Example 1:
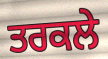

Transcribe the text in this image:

ਤਰਕਲੇ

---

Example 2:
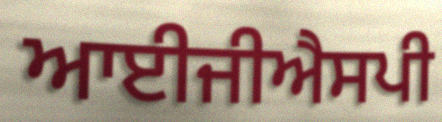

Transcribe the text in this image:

ਆਈਜੀਐਸਪੀ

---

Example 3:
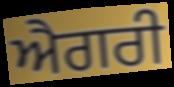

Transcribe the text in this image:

ਐਗਰੀ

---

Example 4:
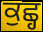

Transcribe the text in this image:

ਕੁਛ੍ਹ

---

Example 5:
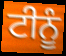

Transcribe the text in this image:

ਟੀਨੂੰ